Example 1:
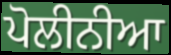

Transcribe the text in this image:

ਪੋਲੀਨੀਆ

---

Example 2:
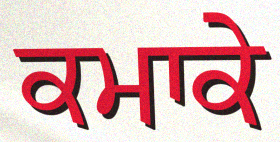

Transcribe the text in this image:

ਕਮਾਕੇ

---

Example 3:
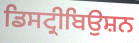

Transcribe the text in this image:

ਡਿਸਟ੍ਰੀਬਿਉਸ਼ਨ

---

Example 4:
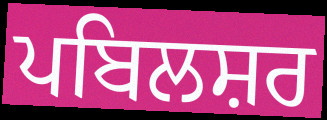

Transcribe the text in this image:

ਪਬਿਲਸ਼ਰ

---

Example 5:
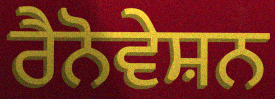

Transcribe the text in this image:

ਰੈਨੋਵੇਸ਼ਨ